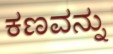
ಕಣವನ್ನು